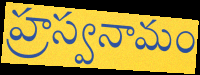
హ్రస్వనామం